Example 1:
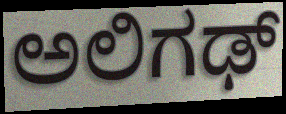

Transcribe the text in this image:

ಅಲಿಗಢ್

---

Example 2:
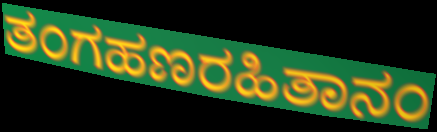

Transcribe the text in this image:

ತಂಗಹಣರಹಿತಾನಂ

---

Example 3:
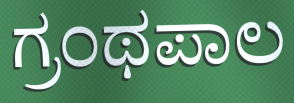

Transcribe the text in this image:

ಗ್ರಂಥಪಾಲ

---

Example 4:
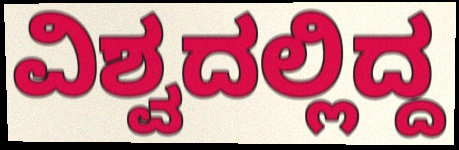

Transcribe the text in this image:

ವಿಶ್ವದಲ್ಲಿದ್ದ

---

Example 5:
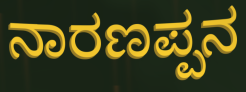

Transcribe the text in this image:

ನಾರಣಪ್ಪನ